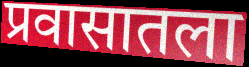
प्रवासातला